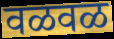
वळवळ